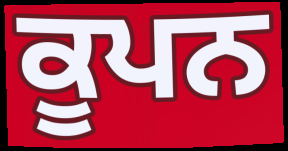
ਕੂਪਨ